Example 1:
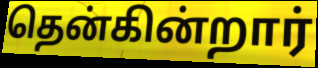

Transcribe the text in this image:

தென்கின்றார்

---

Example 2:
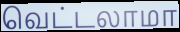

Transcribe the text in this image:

வெட்டலாமா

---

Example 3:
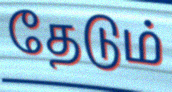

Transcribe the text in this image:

தேடும்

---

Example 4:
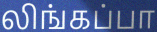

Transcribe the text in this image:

லிங்கப்பா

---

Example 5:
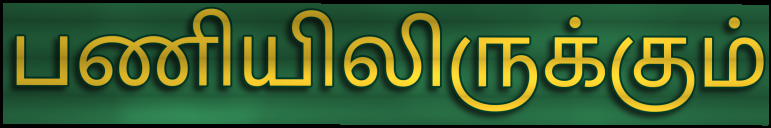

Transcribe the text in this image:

பணியிலிருக்கும்